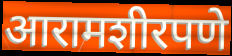
आरामशीरपणे